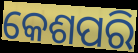
କେଶପରି